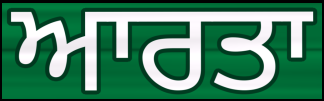
ਆਰਤਾ